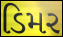
ડિમર